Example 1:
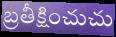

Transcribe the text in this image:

బ్రతీక్షించుచు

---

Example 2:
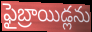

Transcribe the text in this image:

ఫైబ్రాయిడ్లను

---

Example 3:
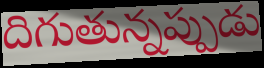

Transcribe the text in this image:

దిగుతున్నప్పుడు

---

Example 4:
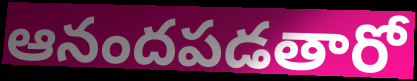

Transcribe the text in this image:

ఆనందపడతారో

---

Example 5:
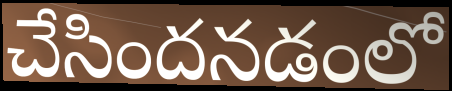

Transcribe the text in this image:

చేసిందనడంలో